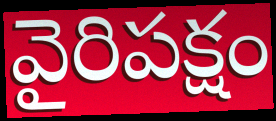
వైరిపక్షం